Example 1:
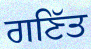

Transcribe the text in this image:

ਗਣਿੱਤ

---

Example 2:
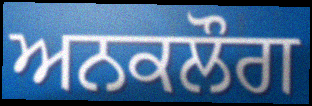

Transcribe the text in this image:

ਅਨਕਲੌਗ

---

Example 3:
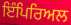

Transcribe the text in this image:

ਇੰਪਿਰਿਅਲ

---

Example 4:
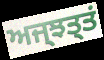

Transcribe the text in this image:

ਅਜ੍ਝਤ੍ਤਂ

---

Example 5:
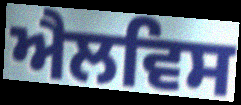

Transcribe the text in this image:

ਐਲਵਿਸ